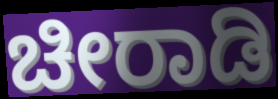
ಚೀರಾಡಿ